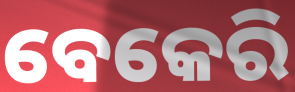
ବେକେରି